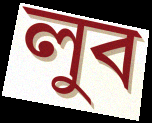
লুব